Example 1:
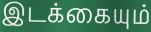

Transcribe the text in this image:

இடக்கையும்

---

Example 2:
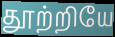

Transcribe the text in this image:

தூற்றியே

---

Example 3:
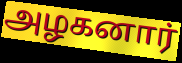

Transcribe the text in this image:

அழகனார்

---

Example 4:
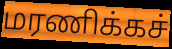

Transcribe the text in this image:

மரணிக்கச்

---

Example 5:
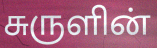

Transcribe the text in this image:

சுருளின்